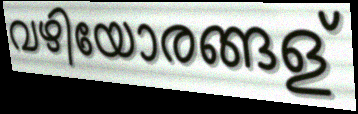
വഴിയോരങ്ങള്